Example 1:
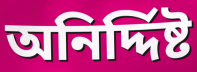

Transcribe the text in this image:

অনির্দ্দিষ্ট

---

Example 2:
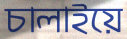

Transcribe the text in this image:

চালাইয়ে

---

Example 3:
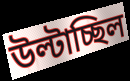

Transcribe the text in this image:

উল্টাচ্ছিল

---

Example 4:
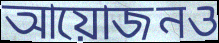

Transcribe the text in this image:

আয়োজনও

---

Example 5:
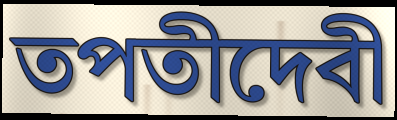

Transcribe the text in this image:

তপতীদেবী